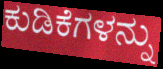
ಕುಡಿಕೆಗಳನ್ನು